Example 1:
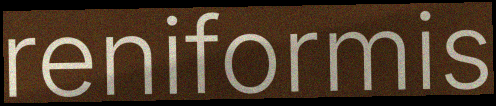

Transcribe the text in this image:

reniformis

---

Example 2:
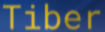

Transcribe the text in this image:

Tiber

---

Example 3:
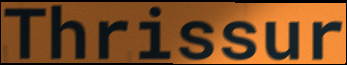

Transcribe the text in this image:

Thrissur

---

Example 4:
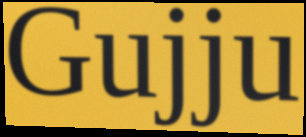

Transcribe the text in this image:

Gujju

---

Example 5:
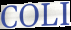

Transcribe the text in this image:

COLI